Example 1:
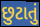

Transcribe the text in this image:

છુટાતું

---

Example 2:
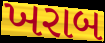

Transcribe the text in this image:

ખરાબ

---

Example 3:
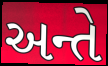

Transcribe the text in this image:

અન્તે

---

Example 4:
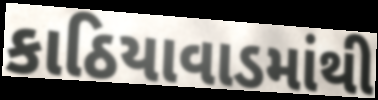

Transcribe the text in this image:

કાઠિયાવાડમાંથી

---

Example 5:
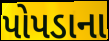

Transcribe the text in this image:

પોપડાના